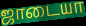
ஜாடையா